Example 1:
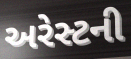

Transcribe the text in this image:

અરેસ્ટની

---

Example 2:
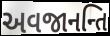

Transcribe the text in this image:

અવજાનન્તિ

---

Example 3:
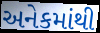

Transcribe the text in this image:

અનેકમાંથી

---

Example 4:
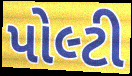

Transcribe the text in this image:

પોલ્ટી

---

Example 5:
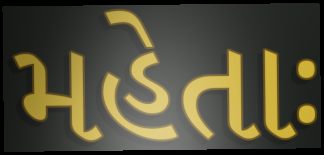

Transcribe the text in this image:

મહેતાઃ